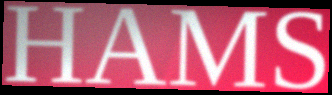
HAMS